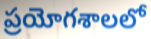
ప్రయోగశాలలో